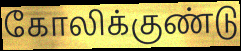
கோலிக்குண்டு